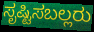
ಸೃಷ್ಟಿಸಬಲ್ಲರು